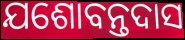
ଯଶୋବନ୍ତଦାସ